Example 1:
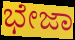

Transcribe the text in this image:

ಭೇಜಾ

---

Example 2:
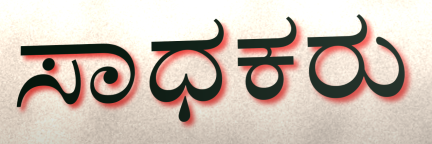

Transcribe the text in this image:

ಸಾಧಕರು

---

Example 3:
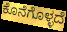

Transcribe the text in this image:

ಕೊನೆಗೊಳ್ಳದೆ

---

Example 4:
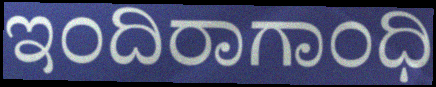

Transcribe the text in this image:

ಇಂದಿರಾಗಾಂಧಿ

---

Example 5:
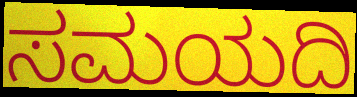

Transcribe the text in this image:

ಸಮಯದಿ